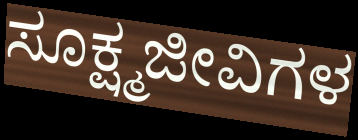
ಸೂಕ್ಷ್ಮಜೀವಿಗಳ